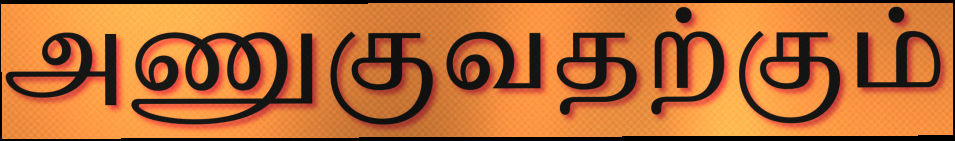
அணுகுவதற்கும்